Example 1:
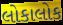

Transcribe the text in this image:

લોકાલોક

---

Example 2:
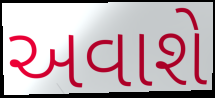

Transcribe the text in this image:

અવાશે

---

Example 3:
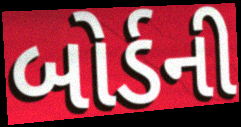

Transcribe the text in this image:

બોર્ડની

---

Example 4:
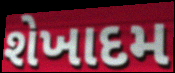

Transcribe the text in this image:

શેખાદમ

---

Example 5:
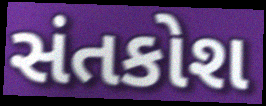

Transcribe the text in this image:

સંતકોશ